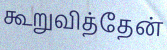
கூறுவித்தேன்